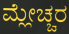
ಮ್ಲೇಚ್ಚರ